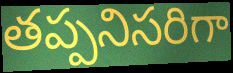
తప్పనిసరిగా